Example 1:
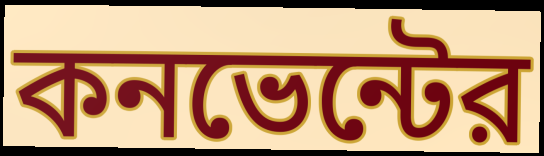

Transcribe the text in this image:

কনভেন্টের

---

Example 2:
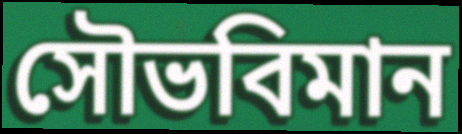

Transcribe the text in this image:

সৌভবিমান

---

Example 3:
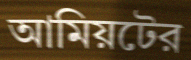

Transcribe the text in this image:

আমিয়টের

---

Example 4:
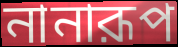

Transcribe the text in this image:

নানারূপ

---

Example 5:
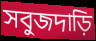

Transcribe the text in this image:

সবুজদাড়ি